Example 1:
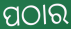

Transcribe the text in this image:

ପଠାର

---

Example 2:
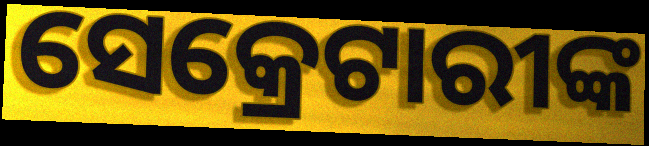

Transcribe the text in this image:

ସେକ୍ରେଟାରୀଙ୍କ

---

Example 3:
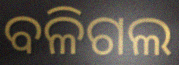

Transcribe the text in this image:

ବଳିଗଲ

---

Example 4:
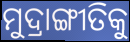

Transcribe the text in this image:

ମୁଦ୍ରାଙ୍ଗୀତିକୁ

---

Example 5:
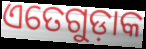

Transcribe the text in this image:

ଏତେଗୁଡ଼ାକ